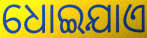
ଧୋଇଯାଏ